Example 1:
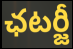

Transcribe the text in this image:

ఛటర్జీ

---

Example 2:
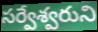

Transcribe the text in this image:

సర్వేశ్వరుని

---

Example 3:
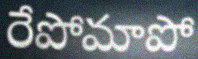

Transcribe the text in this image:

రేపోమాపో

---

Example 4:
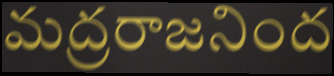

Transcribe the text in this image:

మద్రరాజనింద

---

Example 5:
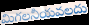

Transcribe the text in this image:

మిగలనీయవలదు